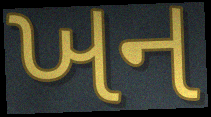
ખન